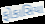
ફોકાસિયા